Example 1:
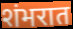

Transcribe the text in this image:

शंभरात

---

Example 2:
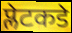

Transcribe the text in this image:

प्लेटकडे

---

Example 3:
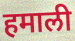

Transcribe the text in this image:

हमाली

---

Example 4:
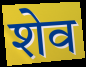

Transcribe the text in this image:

शेव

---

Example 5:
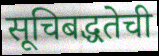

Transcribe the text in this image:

सूचिबद्धतेची